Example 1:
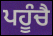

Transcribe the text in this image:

ਪਹੂੰਚੈ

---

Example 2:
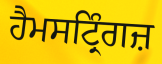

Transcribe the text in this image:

ਹੈਮਸਟ੍ਰਿੰਗਜ਼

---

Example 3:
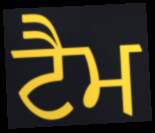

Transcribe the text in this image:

ਟੈਮ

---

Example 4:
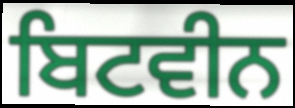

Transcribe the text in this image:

ਬਿਟਵੀਨ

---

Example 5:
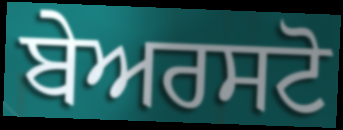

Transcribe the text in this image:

ਬੇਅਰਸਟੋ